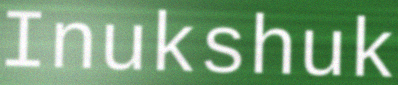
Inukshuk